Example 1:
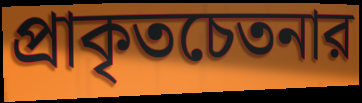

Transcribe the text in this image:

প্রাকৃতচেতনার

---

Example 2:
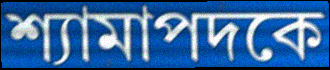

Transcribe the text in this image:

শ্যামাপদকে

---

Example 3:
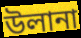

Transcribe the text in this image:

উলানা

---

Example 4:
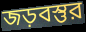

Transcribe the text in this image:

জড়বস্তুর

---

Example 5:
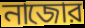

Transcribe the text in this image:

নাজোর